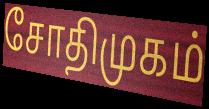
சோதிமுகம்